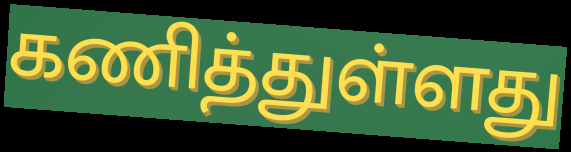
கணித்துள்ளது